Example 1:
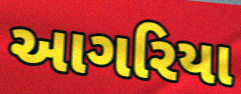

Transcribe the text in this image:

આગરિયા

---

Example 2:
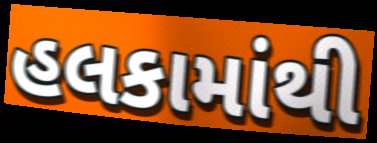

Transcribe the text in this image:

હલકામાંથી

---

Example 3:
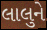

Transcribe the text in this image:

લાલુને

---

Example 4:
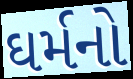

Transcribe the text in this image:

ઘર્મનો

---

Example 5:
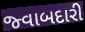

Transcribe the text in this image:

જ્વાબદારી